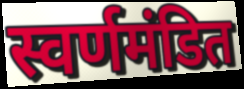
स्वर्णमंडित